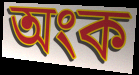
অংক